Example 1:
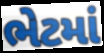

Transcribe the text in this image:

ભેટમાં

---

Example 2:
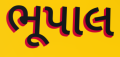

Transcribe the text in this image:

ભૂપાલ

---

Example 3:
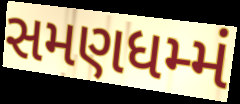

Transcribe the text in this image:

સમણધમ્મં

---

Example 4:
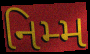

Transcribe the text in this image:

નિમ્મ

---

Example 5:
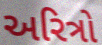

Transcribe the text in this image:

અરિત્રો